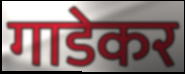
गाडेकर